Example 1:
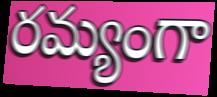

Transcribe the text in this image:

రమ్యంగా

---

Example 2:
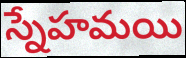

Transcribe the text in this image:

స్నేహమయి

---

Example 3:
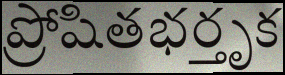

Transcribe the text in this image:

ప్రోషితభర్తృక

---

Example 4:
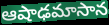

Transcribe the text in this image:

ఆషాఢమాసాన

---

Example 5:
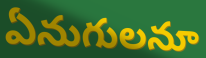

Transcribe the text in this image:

ఏనుగులనూ